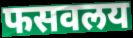
फसवलय